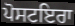
ਪੋਸਟਇਰਾ